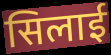
सिलाई